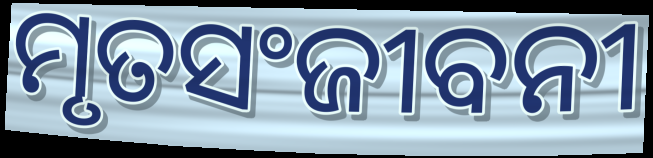
ମୃତସଂଜୀବନୀ